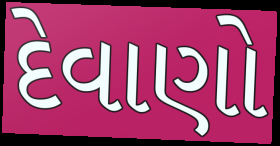
દેવાણો